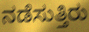
ನಡೆಸುತ್ತಿರು